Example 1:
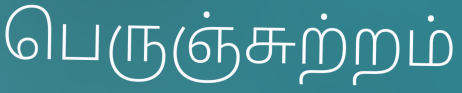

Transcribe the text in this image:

பெருஞ்சுற்றம்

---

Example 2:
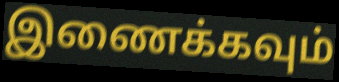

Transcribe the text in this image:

இணைக்கவும்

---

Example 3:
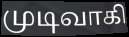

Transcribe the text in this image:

முடிவாகி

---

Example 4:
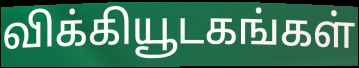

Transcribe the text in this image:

விக்கியூடகங்கள்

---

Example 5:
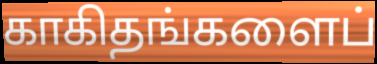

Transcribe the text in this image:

காகிதங்களைப்